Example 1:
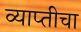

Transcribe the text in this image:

व्याप्तीचा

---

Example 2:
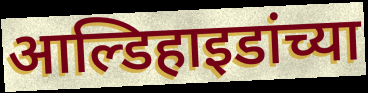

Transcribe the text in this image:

आल्डिहाइडांच्या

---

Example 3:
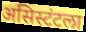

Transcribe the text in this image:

असिस्टंटला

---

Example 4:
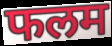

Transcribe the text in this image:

फलम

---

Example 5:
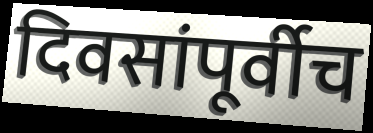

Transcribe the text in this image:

दिवसांपूर्वीच